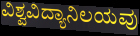
ವಿಶ್ವವಿದ್ಯಾನಿಲಯವು